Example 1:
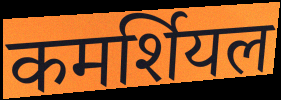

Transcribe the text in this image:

कमर्शियल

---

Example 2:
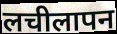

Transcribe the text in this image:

लचीलापन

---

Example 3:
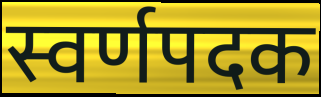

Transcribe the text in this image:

स्वर्णपदक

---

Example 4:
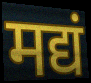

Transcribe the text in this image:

मद्यं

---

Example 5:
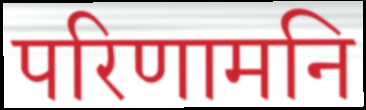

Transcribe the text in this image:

परिणामनि